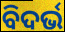
ବିଦର୍ଭ